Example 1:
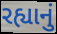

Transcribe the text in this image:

રહ્યાનું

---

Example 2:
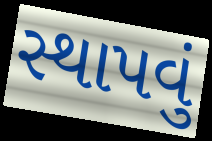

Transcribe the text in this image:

સ્થાપવું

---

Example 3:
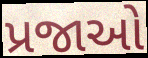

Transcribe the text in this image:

પ્રજાઓ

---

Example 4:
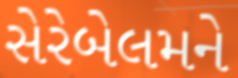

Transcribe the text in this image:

સેરેબેલમને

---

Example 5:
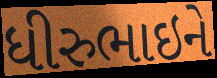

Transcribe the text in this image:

ધીરુભાઇને